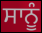
ਸਾਨੂੰ